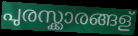
പുരസ്ക്കാരങ്ങള്